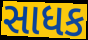
સાધક